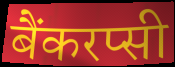
बैंकरप्सी